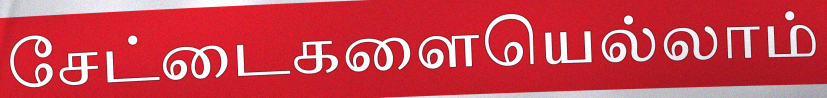
சேட்டைகளையெல்லாம்